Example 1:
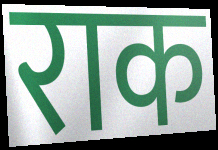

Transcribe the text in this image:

राक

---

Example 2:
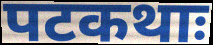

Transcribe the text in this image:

पटकथाः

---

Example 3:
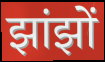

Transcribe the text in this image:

झांझों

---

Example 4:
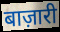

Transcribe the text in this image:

बाज़ारी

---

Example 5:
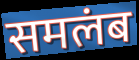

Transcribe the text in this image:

समलंब